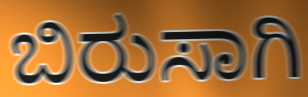
ಬಿರುಸಾಗಿ